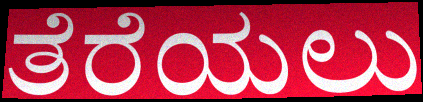
ತೆರೆಯಲು